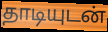
தாடியுடன்